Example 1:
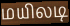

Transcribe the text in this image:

மயிலடி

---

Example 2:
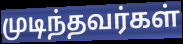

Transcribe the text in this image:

முடிந்தவர்கள்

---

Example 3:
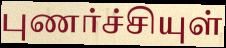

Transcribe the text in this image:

புணர்ச்சியுள்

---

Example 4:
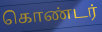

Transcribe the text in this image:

கொண்டர்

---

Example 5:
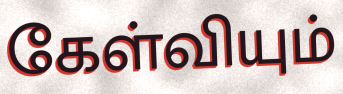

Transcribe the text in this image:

கேள்வியும்